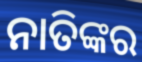
ନାତିଙ୍କର